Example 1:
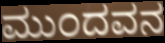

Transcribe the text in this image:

ಮುಂದವನ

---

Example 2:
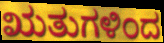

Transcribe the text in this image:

ಋತುಗಳಿಂದ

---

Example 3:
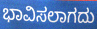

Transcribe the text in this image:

ಭಾವಿಸಲಾಗದು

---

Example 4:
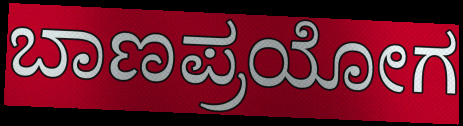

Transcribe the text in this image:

ಬಾಣಪ್ರಯೋಗ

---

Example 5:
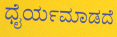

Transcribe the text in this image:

ಧೈರ್ಯಮಾಡದೆ